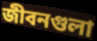
জীবনগুলা